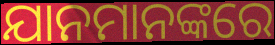
ଯାନମାନଙ୍କରେ